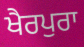
ਖੈਰਪੁਰਾ